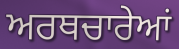
ਅਰਥਚਾਰੇਆਂ